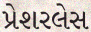
પ્રેશરલેસ